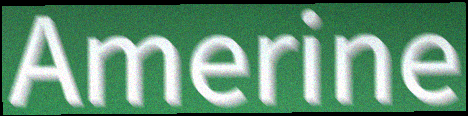
Amerine